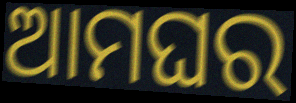
ଆମଘର